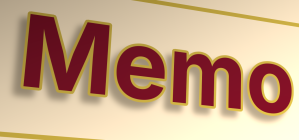
Memo